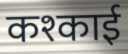
कश्काई